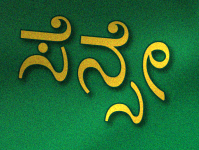
ಸೆನ್ಸೇ